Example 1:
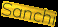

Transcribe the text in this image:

Sanchi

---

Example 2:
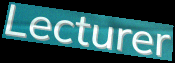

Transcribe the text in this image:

Lecturer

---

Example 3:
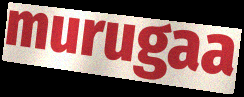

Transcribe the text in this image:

murugaa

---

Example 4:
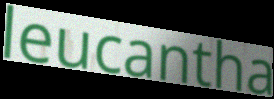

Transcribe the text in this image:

leucantha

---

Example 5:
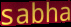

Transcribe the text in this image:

sabha